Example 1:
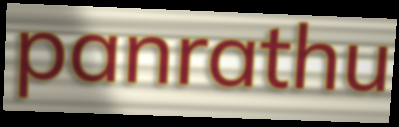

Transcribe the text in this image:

panrathu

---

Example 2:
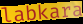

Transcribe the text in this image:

labkara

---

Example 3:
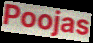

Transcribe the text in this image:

Poojas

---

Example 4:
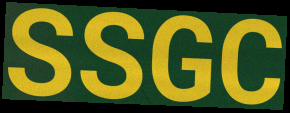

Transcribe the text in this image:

SSGC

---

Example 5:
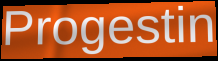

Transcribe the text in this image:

Progestin